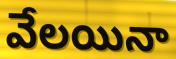
వేలయినా